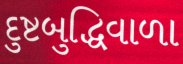
દુષ્ટબુદ્ધિવાળા